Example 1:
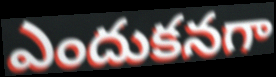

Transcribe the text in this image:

ఎందుకనగా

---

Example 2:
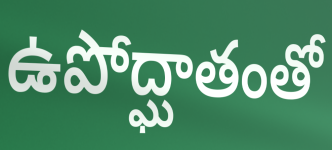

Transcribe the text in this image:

ఉపోద్ఘాతంతో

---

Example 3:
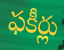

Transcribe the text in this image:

ఫకీర్లు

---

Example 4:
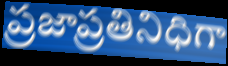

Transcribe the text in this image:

ప్రజాప్రతినిధిగా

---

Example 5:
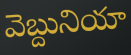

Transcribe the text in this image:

వెబ్దునియా